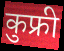
कुफ्री